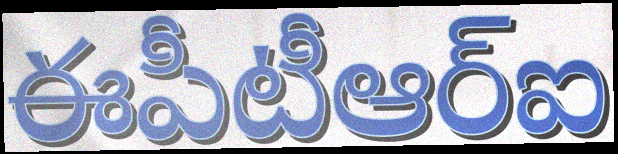
ఈపీటీఆర్ఐ